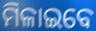
ମିଳାଇବେ